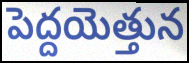
పెద్దయెత్తున